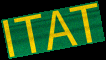
ITAT